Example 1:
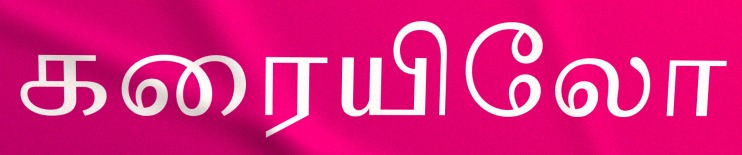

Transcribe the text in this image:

கரையிலோ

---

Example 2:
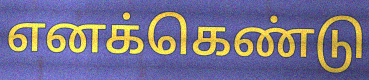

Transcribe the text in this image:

எனக்கெண்டு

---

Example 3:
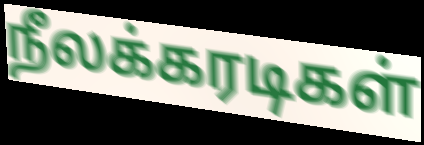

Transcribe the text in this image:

நீலக்கரடிகள்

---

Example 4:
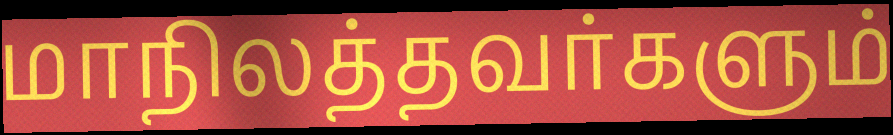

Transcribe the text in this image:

மாநிலத்தவர்களும்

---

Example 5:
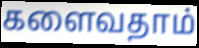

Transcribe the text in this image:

களைவதாம்